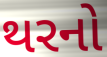
થરનો